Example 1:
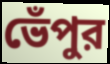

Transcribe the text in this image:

ভেঁপুর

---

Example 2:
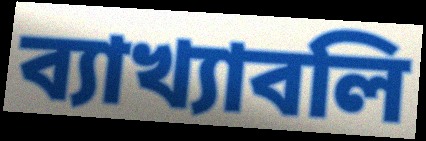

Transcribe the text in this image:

ব্যাখ্যাবলি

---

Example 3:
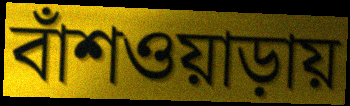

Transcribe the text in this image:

বাঁশওয়াড়ায়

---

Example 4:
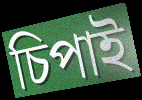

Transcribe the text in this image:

চিপাই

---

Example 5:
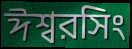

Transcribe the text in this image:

ঈশ্বরসিং